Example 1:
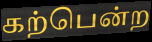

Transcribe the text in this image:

கற்பென்ற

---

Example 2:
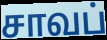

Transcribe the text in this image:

சாவப்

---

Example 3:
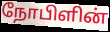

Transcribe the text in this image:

நோபிளின்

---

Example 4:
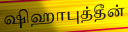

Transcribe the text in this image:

ஷிஹாபுத்தீன்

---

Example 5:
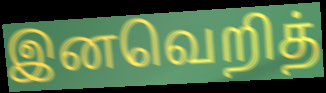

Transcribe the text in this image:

இனவெறித்